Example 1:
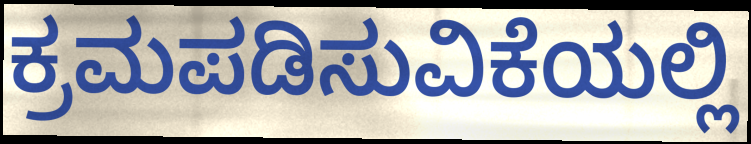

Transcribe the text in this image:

ಕ್ರಮಪಡಿಸುವಿಕೆಯಲ್ಲಿ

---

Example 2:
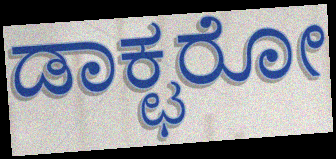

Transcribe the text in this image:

ಡಾಕ್ಟರೋ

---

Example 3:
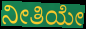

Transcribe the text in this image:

ನೀತಿಯೇ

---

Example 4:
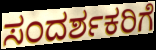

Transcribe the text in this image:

ಸಂದರ್ಶಕರಿಗೆ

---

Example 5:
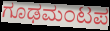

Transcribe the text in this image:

ಗೂಢಮಂಟಪ